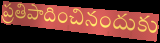
ప్రతిపాదించినందుకు